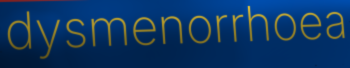
dysmenorrhoea